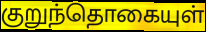
குறுந்தொகையுள்